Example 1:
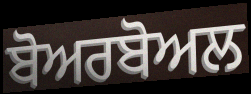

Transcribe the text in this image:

ਬੋਅਰਬੋਅਲ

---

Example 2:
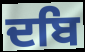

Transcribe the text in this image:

ਦਬਿ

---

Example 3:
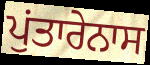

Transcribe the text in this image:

ਪੁਂਤਾਰੇਨਾਸ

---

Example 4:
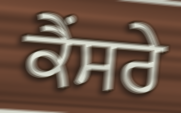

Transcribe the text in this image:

ਕੈਂਸਰੇ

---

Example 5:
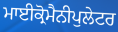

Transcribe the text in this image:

ਮਾਈਕ੍ਰੋਮੈਨੀਪੁਲੇਟਰ